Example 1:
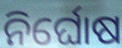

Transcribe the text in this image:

ନିର୍ଘୋଷ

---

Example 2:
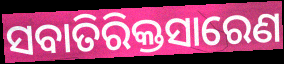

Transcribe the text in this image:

ସବାତିରିକ୍ତସାରେଣ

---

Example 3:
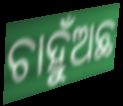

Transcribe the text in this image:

ଚାହୁଁଅଛ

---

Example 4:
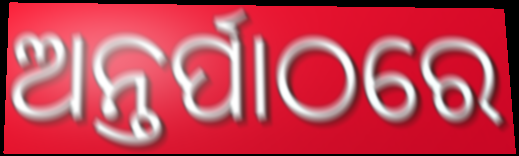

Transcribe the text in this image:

ଅନ୍ତର୍ପାଠରେ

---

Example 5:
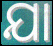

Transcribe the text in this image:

ଯା